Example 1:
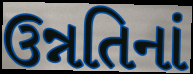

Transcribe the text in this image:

ઉન્નતિનાં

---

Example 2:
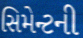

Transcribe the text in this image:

સિમેન્ટની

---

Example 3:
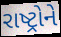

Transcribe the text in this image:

રાષ્ટ્રોને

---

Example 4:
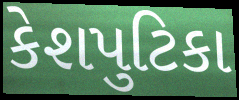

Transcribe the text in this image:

કેશપુટિકા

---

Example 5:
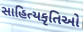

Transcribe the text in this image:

સાહિત્યકૃતિઓ